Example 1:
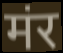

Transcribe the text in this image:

मंर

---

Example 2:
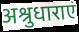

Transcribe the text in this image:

अश्रुधाराएं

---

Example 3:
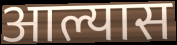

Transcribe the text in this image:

आल्यास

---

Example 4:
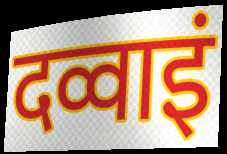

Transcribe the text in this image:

दव्वाइं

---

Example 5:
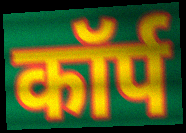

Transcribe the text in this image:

कॉर्प